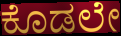
ಕೊಡಲೇ